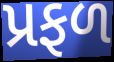
પ્રફળ